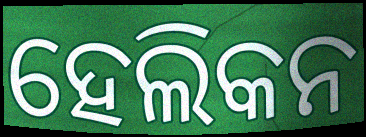
ହେଲିକନ